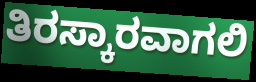
ತಿರಸ್ಕಾರವಾಗಲಿ